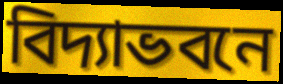
বিদ্যাভবনে